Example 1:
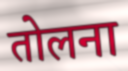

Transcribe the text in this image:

तोलना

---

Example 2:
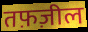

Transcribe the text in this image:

तफ़ज़ील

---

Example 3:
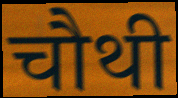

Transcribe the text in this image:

चौथी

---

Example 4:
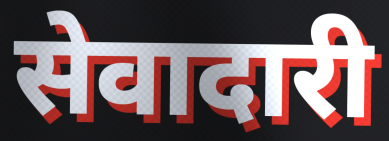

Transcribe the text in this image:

सेवादारी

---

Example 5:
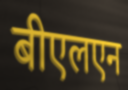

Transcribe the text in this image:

बीएलएन